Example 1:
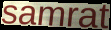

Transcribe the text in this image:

samrat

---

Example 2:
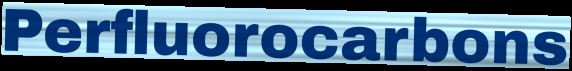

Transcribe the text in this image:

Perfluorocarbons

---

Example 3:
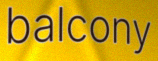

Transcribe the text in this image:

balcony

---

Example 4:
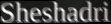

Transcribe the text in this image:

Sheshadri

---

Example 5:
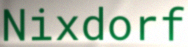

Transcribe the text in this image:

Nixdorf